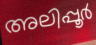
അലിപ്പൂർ